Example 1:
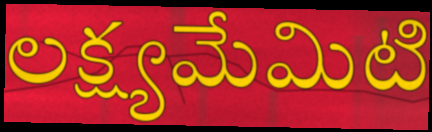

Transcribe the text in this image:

లక్ష్యమేమిటి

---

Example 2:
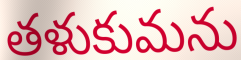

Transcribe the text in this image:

తళుకుమను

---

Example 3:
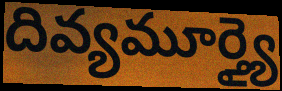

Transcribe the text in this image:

దివ్యమూర్త్యై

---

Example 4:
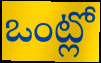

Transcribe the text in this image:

ఒంట్లో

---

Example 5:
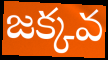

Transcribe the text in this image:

జక్కవ